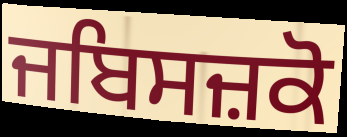
ਜਬਿਸਜ਼ਕੋ